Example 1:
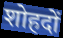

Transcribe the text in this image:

शोहदों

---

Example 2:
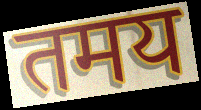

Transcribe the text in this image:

तमय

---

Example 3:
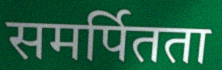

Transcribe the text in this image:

समर्पितता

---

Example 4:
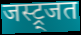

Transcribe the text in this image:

जस्ट्र्जत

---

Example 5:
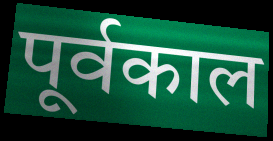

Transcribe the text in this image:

पूर्वकाल